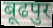
बूढपुर